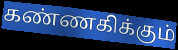
கண்ணகிக்கும்